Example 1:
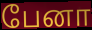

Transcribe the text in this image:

பேனா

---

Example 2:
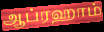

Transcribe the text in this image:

ஆப்ரஹாம்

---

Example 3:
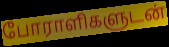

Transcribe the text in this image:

போராளிகளுடன்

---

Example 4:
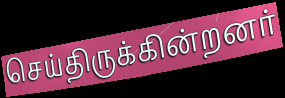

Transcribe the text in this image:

செய்திருக்கின்றனர்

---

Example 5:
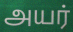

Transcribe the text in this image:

அயர்